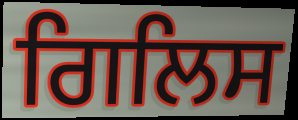
ਗਿਲਿਸ